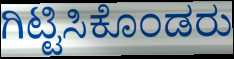
ಗಿಟ್ಟಿಸಿಕೊಂಡರು